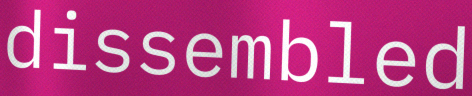
dissembled